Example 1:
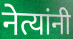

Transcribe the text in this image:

नेत्यांनी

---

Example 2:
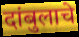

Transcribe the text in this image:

दांबुलाचे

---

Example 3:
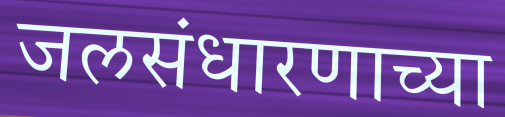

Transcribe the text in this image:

जलसंधारणाच्या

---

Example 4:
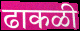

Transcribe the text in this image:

ढाकळी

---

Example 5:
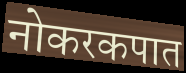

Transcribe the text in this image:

नोकरकपात